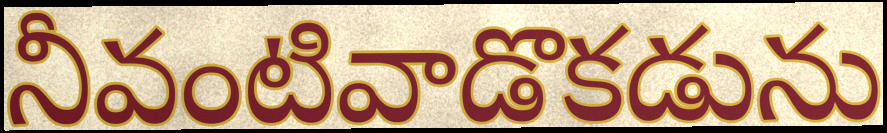
నీవంటివాడొకడును